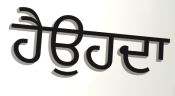
ਹੈਉਹਦਾ